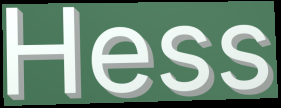
Hess